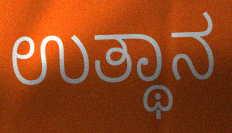
ಉತ್ಥಾನ